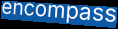
encompass